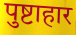
पुष्टाहार